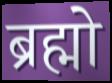
ब्रह्मो